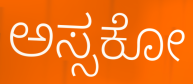
ಅಸ್ಸಕೋ